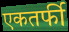
एकतर्फी